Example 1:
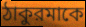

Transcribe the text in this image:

ঠাকুরমাকে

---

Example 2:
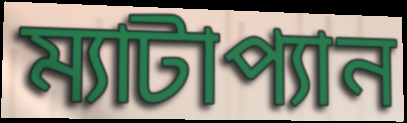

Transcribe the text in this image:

ম্যাটাপ্যান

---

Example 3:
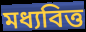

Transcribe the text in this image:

মধ্যবিত্ত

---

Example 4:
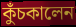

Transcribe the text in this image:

কুঁচকালেন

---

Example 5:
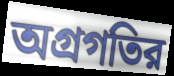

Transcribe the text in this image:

অগ্রগতির